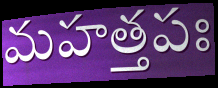
మహత్తపః